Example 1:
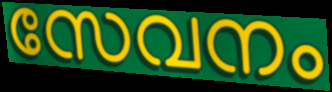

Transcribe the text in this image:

സേവനം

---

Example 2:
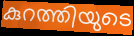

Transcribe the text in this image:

കുറത്തിയുടെ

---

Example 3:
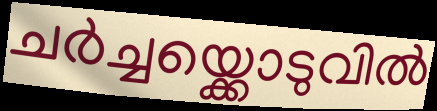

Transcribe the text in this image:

ചർച്ചയ്ക്കൊടുവിൽ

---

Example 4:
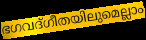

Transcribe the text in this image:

ഭഗവദ്ഗീതയിലുമെല്ലാം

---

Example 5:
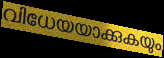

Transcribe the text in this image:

വിധേയയാക്കുകയും